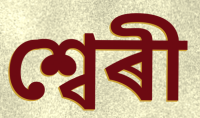
শ্বেৰী